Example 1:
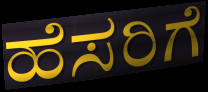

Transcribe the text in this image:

ಹೆಸರಿಗೆ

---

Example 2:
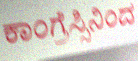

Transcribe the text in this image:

ಕಾಂಗ್ರೆಸ್ಸಿನಿಂದ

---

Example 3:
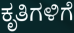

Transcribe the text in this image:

ಕೃತಿಗಳಿಗೆ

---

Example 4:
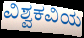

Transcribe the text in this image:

ವಿಶ್ವಕವಿಯ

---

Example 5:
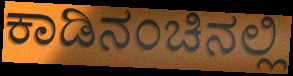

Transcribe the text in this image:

ಕಾಡಿನಂಚಿನಲ್ಲಿ